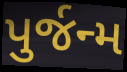
પુર્જન્મ